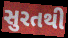
સુરતથી